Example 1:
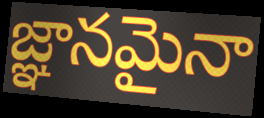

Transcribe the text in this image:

జ్ఞానమైనా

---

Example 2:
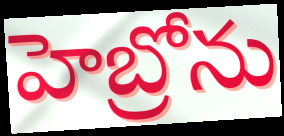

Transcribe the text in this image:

హెబ్రోను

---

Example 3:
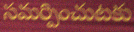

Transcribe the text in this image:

సమర్పించుటకు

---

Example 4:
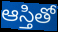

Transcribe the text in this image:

ఆస్తితో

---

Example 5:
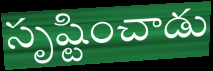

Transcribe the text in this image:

సృష్టించాడు